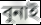
বুনাই